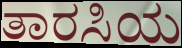
ತಾರಸಿಯ